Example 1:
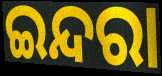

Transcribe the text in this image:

ଇନ୍ଦରା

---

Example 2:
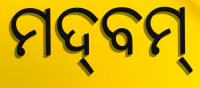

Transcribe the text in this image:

ମଦ୍‌ବମ୍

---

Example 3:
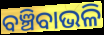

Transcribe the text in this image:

ବଞ୍ଚିବାଭଳି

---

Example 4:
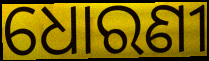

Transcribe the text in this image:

ଧୋରଣୀ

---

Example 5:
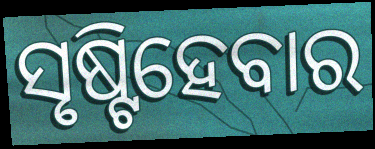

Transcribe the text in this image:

ସୃଷ୍ଟିହେବାର